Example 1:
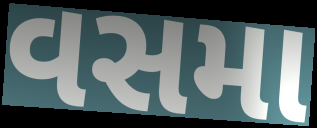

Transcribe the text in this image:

વસમા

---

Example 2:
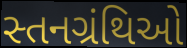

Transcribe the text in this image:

સ્તનગ્રંથિઓ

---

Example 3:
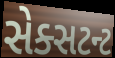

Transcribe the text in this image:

સેક્સટન્ટ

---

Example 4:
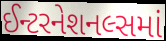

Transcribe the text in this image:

ઈન્ટરનેશનલ્સમાં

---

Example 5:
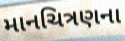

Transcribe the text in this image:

માનચિત્રણના